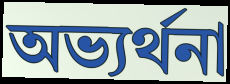
অভ্যর্থনা